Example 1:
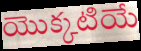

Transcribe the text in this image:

యొక్కటియే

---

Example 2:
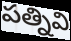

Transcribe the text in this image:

పత్నివి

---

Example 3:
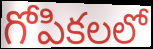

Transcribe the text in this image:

గోపికలలో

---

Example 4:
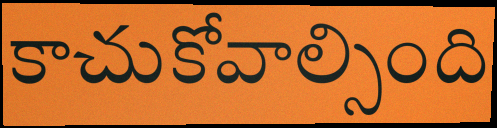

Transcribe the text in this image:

కాచుకోవాల్సింది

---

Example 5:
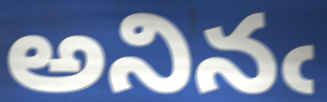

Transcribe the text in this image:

అనినఁ